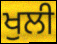
ਖੁਲੀ